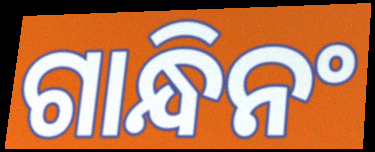
ଗାନ୍ଧିନଂ